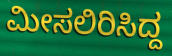
ಮೀಸಲಿರಿಸಿದ್ದ